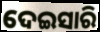
ଦେଇସାରି